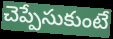
చెప్పేసుకుంటే